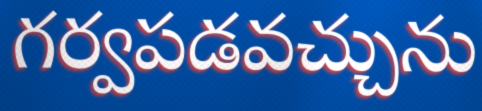
గర్వపడవచ్చును